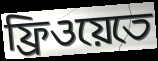
ফ্রিওয়েতে